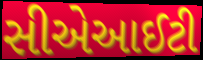
સીએઆઈટી